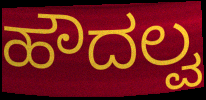
ಹೌದಲ್ವ